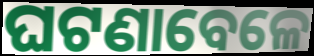
ଘଟଣାବେଳେ